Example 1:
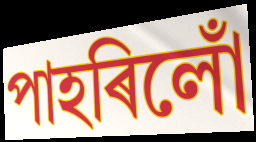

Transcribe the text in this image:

পাহৰিলোঁ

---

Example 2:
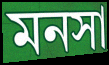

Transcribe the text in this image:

মনসা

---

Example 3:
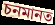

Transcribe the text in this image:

চনমানত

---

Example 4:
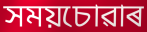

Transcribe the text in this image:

সময়চোৱাৰ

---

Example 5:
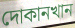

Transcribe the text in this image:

দোকানখান